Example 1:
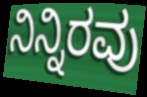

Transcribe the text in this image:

ನಿನ್ನಿರವು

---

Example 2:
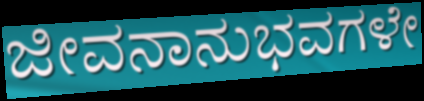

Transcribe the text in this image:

ಜೀವನಾನುಭವಗಳೇ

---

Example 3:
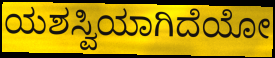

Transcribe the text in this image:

ಯಶಸ್ವಿಯಾಗಿದೆಯೋ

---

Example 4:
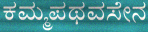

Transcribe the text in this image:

ಕಮ್ಮಪಥವಸೇನ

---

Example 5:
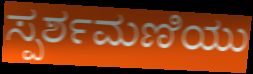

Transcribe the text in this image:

ಸ್ಪರ್ಶಮಣಿಯು